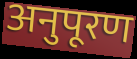
अनुपूरण